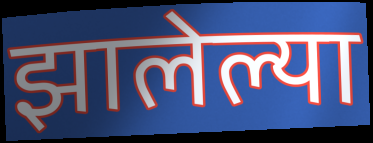
झालेल्या